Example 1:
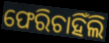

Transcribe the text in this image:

ଫେରିଚାହିଁଲି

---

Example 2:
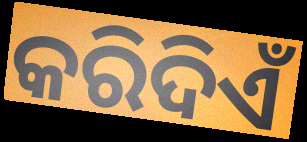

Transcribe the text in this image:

କରିଦିଏଁ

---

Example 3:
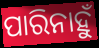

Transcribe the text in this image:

ପାରିନାହୁଁ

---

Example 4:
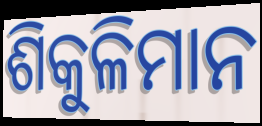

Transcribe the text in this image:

ଶିକୁଳିମାନ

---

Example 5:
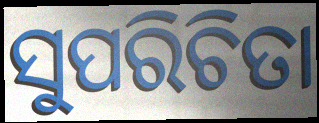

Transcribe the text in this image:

ସୁପରିଚିତା